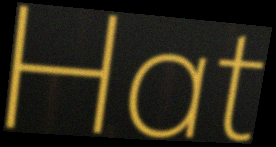
Hat